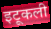
इटूकली